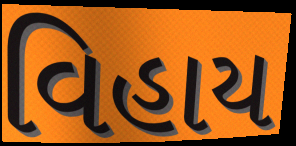
વિહાય